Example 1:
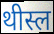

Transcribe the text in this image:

थीस्ल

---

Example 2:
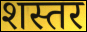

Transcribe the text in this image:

शस्तर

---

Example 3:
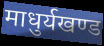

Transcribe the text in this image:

माधुर्यखण्ड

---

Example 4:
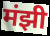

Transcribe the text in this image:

मंझी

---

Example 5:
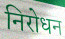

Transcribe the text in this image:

निरोधन